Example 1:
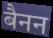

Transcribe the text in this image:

बैनन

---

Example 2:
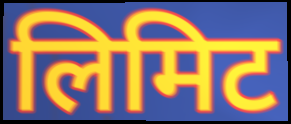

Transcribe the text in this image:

लिमिट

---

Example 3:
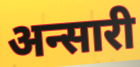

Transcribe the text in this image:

अन्सारी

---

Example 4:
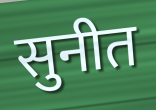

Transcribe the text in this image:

सुनीत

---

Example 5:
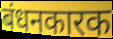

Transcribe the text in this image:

बंधनकारक